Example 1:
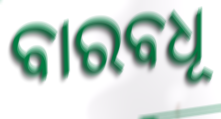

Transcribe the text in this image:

ବାରବଧୂ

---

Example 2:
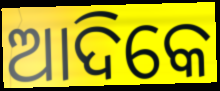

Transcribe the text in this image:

ଆଦିକେ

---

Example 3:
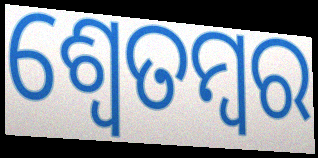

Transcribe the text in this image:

ଶ୍ଵେତମ୍ବର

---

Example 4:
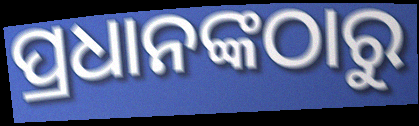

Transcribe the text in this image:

ପ୍ରଧାନଙ୍କଠାରୁ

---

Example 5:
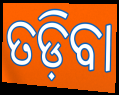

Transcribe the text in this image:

ତଡ଼ିବା